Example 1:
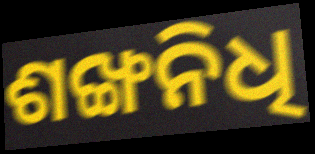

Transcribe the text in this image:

ଶଙ୍ଖନିଧି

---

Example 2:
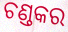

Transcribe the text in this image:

ଚଣ୍ଡକର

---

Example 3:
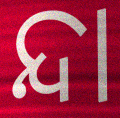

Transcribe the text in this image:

ନ୍ଦା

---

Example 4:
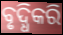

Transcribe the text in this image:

ବୃଦ୍ଧିକରି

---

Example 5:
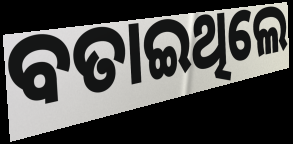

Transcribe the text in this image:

ବତାଇଥିଲେ